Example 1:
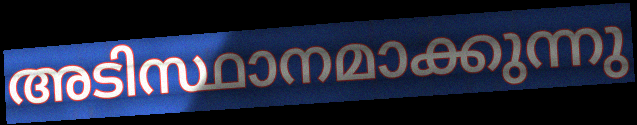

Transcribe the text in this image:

അടിസ്ഥാനമാക്കുന്നു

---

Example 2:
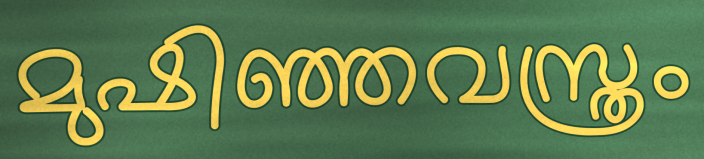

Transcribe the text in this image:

മുഷിഞ്ഞവസ്ത്രം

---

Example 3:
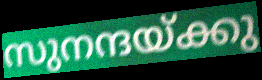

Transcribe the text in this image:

സുനന്ദയ്ക്കു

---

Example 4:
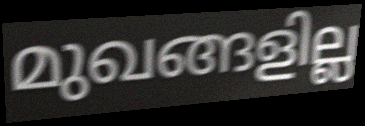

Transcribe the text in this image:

മുഖങ്ങളില്ല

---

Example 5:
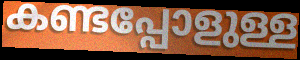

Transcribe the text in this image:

കണ്ടപ്പോളുള്ള